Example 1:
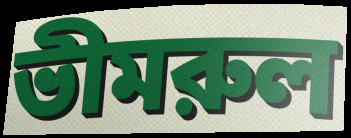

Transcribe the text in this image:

ভীমরুল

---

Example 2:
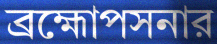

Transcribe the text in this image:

ব্রহ্মোপসনার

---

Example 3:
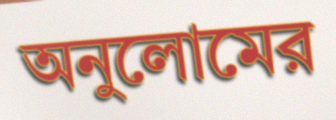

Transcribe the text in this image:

অনুলোমের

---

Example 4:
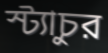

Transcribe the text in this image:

স্ট্যাচুর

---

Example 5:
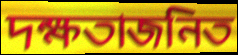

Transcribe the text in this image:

দক্ষতাজনিত